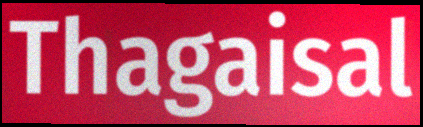
Thagaisal